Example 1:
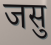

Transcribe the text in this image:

जसु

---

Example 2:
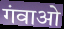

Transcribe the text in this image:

गंवाओ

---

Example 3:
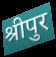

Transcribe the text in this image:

श्रीपुर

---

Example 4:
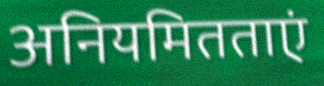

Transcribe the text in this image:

अनियमितताएं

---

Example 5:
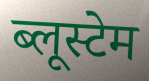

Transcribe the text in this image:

ब्लूस्टेम